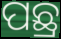
ପଛ୍ର